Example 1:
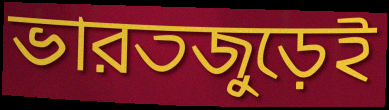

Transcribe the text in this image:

ভারতজুড়েই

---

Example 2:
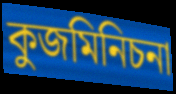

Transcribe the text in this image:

কুজমিনিচনা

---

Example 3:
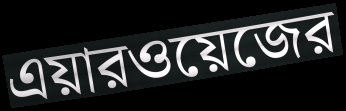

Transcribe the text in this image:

এয়ারওয়েজের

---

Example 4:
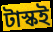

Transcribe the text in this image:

টাস্কই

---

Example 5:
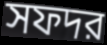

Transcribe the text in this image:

সফদর